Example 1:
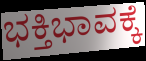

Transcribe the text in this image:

ಭಕ್ತಿಭಾವಕ್ಕೆ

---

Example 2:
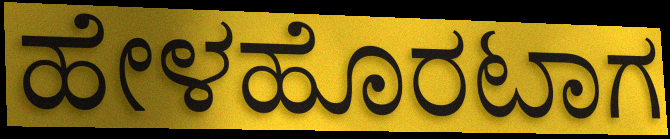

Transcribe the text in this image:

ಹೇಳಹೊರಟಾಗ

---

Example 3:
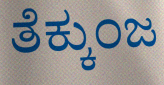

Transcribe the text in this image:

ತೆಕ್ಕುಂಜ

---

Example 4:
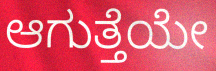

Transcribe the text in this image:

ಆಗುತ್ತೆಯೇ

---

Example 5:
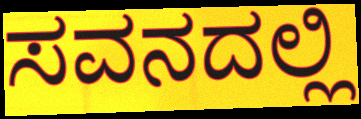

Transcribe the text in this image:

ಸವನದಲ್ಲಿ